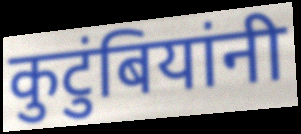
कुटुंबियांनी